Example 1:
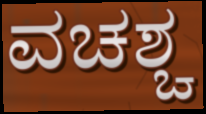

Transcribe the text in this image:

ವಚಶ್ಚ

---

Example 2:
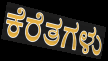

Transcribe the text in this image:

ಕೆರೆತಗಳು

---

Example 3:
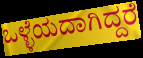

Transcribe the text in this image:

ಒಳ್ಳೆಯದಾಗಿದ್ದರೆ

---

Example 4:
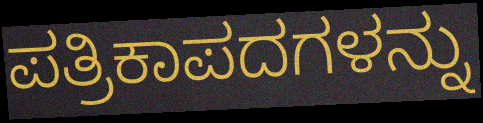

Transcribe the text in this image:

ಪತ್ರಿಕಾಪದಗಳನ್ನು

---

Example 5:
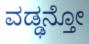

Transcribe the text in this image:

ವಡ್ಢನ್ತೋ